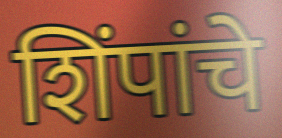
शिंपांचे